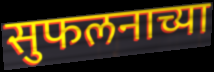
सुफलनाच्या